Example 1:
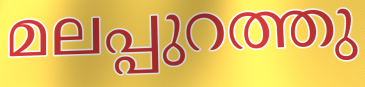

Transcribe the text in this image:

മലപ്പുറത്തു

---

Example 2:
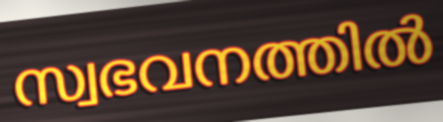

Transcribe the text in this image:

സ്വഭവനത്തിൽ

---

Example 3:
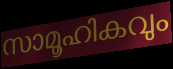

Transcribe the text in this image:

സാമൂഹികവും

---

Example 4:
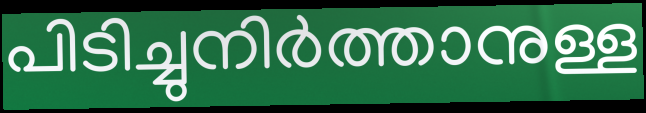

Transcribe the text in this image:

പിടിച്ചുനിർത്താനുള്ള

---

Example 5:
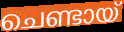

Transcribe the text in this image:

ചെണ്ടായ്